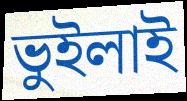
ভুইলাই